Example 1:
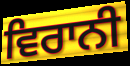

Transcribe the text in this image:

ਵਿਰਾਨੀ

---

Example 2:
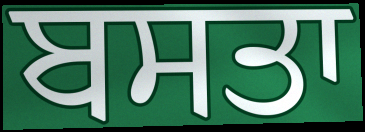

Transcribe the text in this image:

ਬਸਤਾ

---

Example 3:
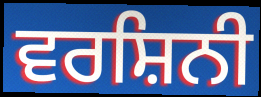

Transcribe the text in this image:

ਵਰਸ਼ਿਨੀ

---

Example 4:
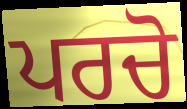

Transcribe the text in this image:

ਪਰਚੋ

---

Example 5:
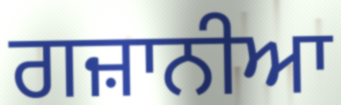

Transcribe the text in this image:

ਗਜ਼ਾਨੀਆ